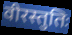
वीरस्तुतिः